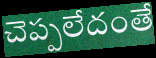
చెప్పలేదంతే